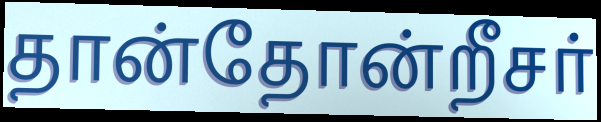
தான்தோன்றீசர்